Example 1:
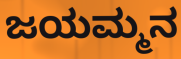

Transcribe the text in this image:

ಜಯಮ್ಮನ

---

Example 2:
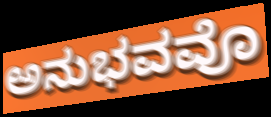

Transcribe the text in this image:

ಅನುಭವವೊ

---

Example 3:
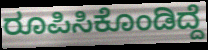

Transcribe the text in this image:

ರೂಪಿಸಿಕೊಂಡಿದ್ದೆ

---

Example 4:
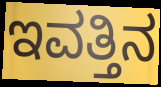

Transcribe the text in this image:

ಇವತ್ತಿನ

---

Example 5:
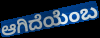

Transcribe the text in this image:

ಆಗಿದೆಯೆಂಬ